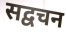
सद्वचन